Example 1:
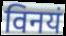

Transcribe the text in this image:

विनयं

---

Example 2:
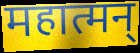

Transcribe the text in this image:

महात्मन्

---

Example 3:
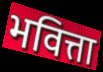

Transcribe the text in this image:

भवित्ता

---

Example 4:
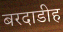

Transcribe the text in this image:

बरदाडीह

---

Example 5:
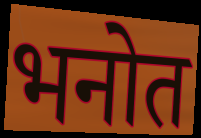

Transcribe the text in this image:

भनोत